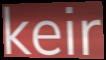
keir